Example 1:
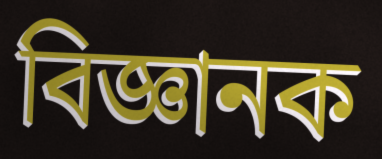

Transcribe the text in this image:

বিজ্ঞানক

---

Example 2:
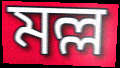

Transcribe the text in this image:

মল্ল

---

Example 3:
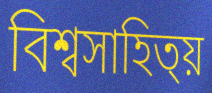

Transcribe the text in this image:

বিশ্বসাহিত্য়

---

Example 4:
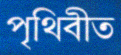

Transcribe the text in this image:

পৃথিবীত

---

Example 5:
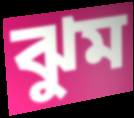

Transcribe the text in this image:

ঝুম